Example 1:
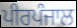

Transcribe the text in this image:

ਪੀਰਪੰਜਾਲ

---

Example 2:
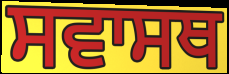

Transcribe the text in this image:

ਸਵਾਸਥ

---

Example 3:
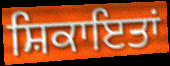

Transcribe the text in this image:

ਸ਼ਿਕਾਇਤਾਂ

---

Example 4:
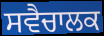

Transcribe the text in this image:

ਸਵੈਚਾਲਕ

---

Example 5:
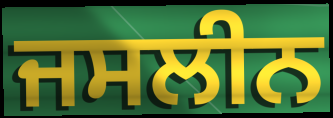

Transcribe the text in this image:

ਜਸਲੀਨ